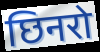
छिनरो